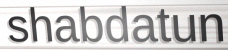
shabdatun